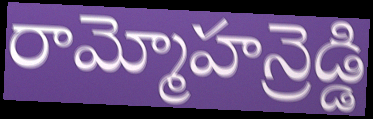
రామ్మోహన్రెడ్డి